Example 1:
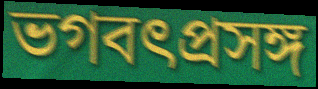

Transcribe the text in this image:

ভগবৎপ্রসঙ্গ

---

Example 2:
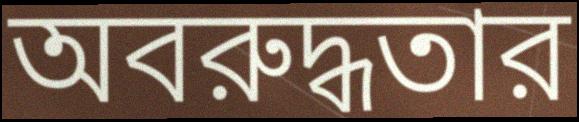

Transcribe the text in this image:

অবরুদ্ধতার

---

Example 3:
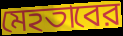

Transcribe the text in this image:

মেহতাবের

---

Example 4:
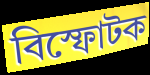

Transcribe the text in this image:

বিস্ফোটক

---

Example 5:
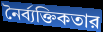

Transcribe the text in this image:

নৈর্ব্যক্তিকতার